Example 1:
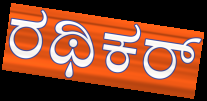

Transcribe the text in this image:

ರಥಿಕರ್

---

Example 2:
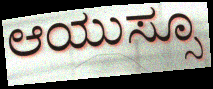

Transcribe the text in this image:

ಆಯುಸ್ಸೂ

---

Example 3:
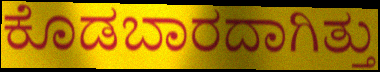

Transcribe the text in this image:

ಕೊಡಬಾರದಾಗಿತ್ತು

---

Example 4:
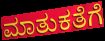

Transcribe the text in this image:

ಮಾತುಕತೆಗೆ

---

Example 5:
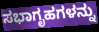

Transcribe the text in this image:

ಸಭಾಗೃಹಗಳನ್ನು